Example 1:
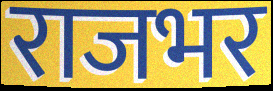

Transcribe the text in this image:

राजभर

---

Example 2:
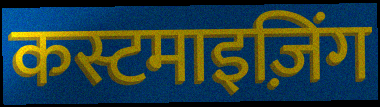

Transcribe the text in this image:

कस्टमाइज़िंग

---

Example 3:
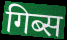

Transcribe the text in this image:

गिब्स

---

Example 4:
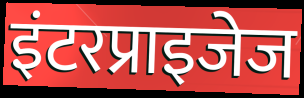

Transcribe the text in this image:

इंटरप्राइजेज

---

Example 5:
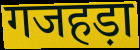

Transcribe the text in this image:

गजहड़ा